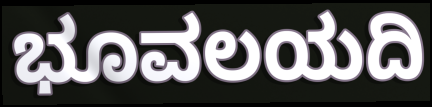
ಭೂವಲಯದಿ